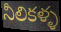
నీలికళ్ళ